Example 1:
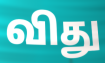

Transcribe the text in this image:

விது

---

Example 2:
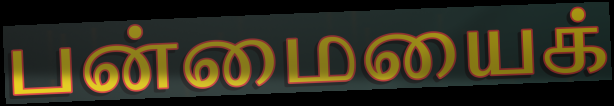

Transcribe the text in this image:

பன்மையைக்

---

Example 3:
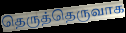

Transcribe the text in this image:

தெருத்தெருவாக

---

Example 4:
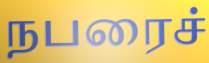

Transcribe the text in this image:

நபரைச்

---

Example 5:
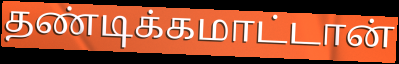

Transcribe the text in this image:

தண்டிக்கமாட்டான்